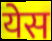
येस